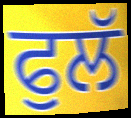
ਫੁਲੱ